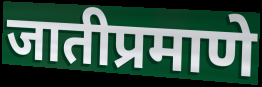
जातीप्रमाणे